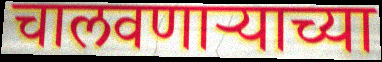
चालवणार्‍याच्या